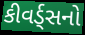
કીવર્ડ્સનો